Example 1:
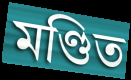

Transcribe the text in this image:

মণ্ডিত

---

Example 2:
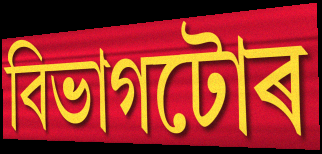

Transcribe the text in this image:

বিভাগটোৰ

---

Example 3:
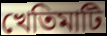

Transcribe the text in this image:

খেতিমাটি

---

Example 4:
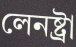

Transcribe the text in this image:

লেনষ্ট্ৰা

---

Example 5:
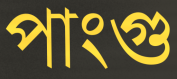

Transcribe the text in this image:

পাংগু